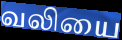
வலியை